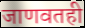
जाणवतही